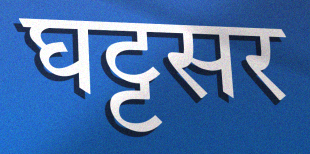
घट्टसर